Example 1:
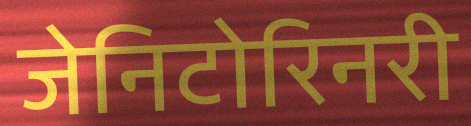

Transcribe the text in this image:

जेनिटोरिनरी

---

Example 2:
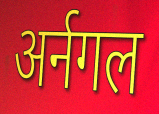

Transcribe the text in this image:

अर्नगल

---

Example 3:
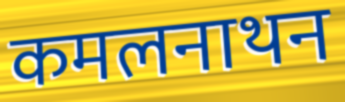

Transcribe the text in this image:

कमलनाथन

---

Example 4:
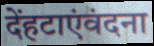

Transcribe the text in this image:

देंहटाएंवंदना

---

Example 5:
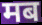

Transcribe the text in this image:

मब